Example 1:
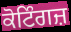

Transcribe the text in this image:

ਕੋਟਿੰਗਜ਼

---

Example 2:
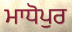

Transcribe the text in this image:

ਮਾਧੋਪੁਰ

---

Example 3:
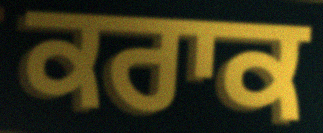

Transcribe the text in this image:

ਕਰਾਕ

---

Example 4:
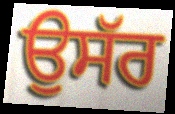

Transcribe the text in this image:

ਉਸੱਰ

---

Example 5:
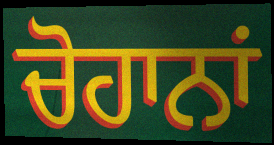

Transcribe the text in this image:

ਚੋਹਾਨਾਂ